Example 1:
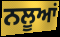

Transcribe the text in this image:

ਨਲੂਆਂ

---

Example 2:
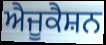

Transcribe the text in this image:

ਐਜੂਕੈਸ਼ਨ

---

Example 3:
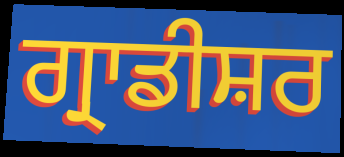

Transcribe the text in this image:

ਗ੍ਰਾਡੀਸ਼ਰ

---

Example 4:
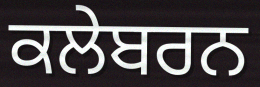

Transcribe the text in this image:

ਕਲੇਬਰਨ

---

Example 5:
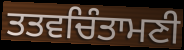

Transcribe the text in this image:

ਤਤਵਚਿੰਤਾਮਣੀ